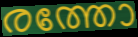
രത്തോ